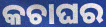
କଚାଘର